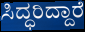
ಸಿದ್ಧರಿದ್ದಾರೆ